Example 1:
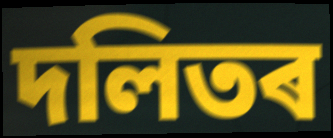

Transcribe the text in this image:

দলিতৰ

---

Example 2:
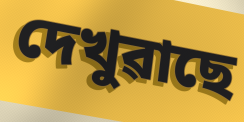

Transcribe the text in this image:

দেখুৱাছে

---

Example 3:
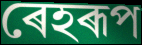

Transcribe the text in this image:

ৰেহৰূপ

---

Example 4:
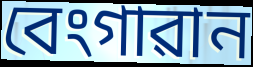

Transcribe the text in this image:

বেংগাৱান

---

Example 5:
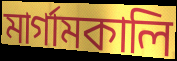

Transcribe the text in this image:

মাৰ্গামকালি